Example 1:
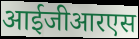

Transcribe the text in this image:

आईजीआरएस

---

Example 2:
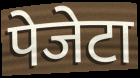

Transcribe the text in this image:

पेजेटा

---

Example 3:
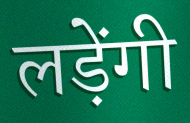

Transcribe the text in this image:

लड़ेंगी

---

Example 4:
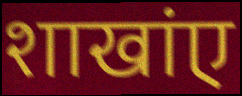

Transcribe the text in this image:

शाखांए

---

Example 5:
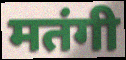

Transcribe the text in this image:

मतंगी